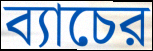
ব্যাচের